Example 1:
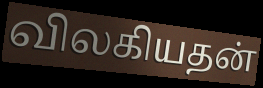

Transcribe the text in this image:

விலகியதன்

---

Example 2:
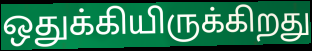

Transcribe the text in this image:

ஒதுக்கியிருக்கிறது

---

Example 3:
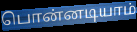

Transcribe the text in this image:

பொன்னடியாம்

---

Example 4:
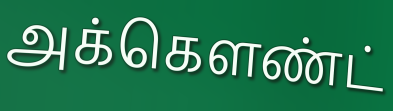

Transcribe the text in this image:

அக்கெளண்ட்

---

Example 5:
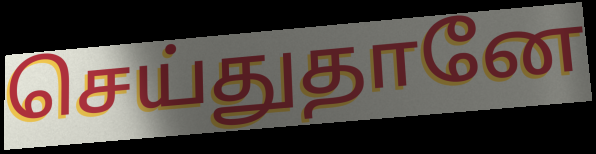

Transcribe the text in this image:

செய்துதானே